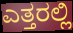
ಎತ್ತರಲ್ಲಿ